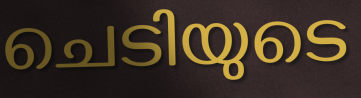
ചെടിയുടെ